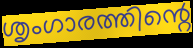
ശൃംഗാരത്തിന്റെ